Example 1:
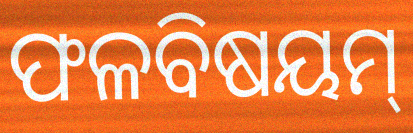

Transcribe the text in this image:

ଫଳବିଷୟମ୍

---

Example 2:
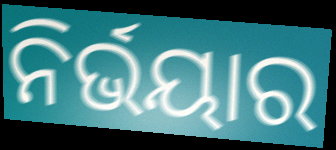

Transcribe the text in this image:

ନିର୍ଭୟାର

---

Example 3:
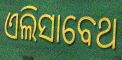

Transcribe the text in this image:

ଏଲିସାବେଥ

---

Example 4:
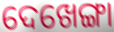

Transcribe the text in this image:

ଦେଖେଙ୍ଗା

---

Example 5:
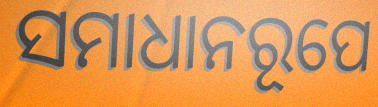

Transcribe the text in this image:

ସମାଧାନରୂପେ